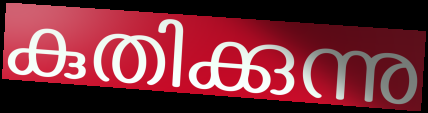
കുതിക്കുന്നു